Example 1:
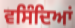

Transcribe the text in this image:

ਵਸਿੰਦਿਆਂ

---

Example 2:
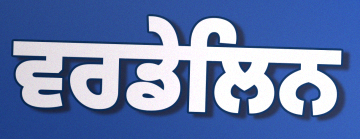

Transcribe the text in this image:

ਵਰਡੇਲਿਨ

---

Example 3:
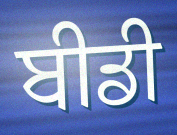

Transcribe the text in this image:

ਬੀਡੀ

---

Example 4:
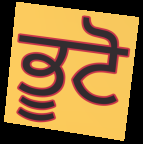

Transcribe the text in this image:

ਭੂਟੋ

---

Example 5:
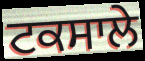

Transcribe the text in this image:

ਟਕਸਾਲੇ